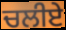
ਚਲੀਏ